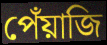
পেঁয়াজি